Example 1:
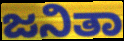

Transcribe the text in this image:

ಜನಿತಾ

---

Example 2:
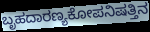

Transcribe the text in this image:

ಬೃಹದಾರಣ್ಯಕೋಪನಿಷತ್ತಿನ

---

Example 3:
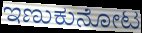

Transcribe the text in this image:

ಇಣುಕುನೋಟ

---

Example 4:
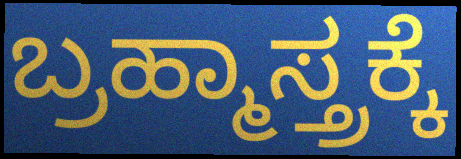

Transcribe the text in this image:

ಬ್ರಹ್ಮಾಸ್ತ್ರಕ್ಕೆ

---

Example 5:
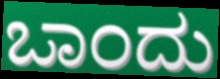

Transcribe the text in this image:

ಒಾಂದು